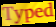
Typed